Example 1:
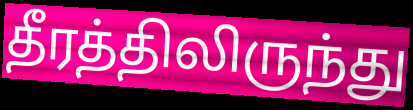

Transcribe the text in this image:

தீரத்திலிருந்து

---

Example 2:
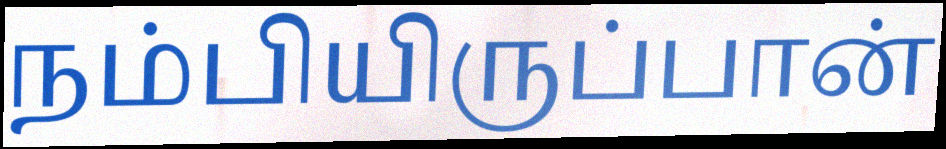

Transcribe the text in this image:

நம்பியிருப்பான்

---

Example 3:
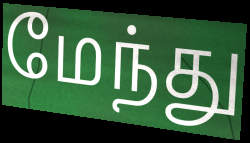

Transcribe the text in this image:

மேந்து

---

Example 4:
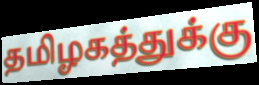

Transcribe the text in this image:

தமிழகத்துக்கு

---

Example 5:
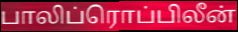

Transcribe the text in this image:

பாலிப்ரொப்பிலீன்